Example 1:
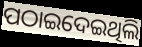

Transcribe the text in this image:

ପଠାଇଦେଇଥିଲି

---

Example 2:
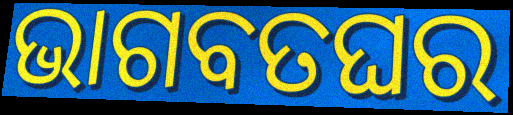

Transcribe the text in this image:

ଭାଗବତଘର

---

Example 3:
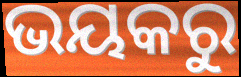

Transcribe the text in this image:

ଭୟକରୁ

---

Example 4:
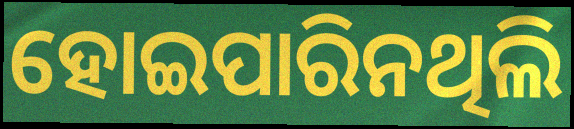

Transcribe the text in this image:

ହୋଇପାରିନଥିଲି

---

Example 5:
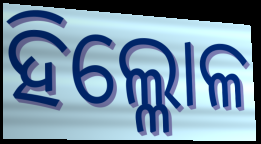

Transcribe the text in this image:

ହିଲ୍ଳୋଳ